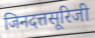
जिनदत्तसूरिजी